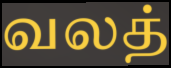
வலத்